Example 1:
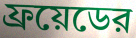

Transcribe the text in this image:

ফ্রয়েডের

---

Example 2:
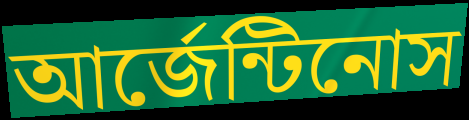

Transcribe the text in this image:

আর্জেন্টিনোস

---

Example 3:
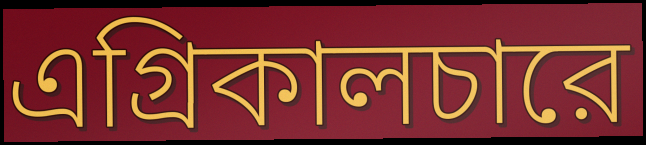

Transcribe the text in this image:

এগ্রিকালচারে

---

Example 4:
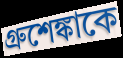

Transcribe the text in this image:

গ্রুশেঙ্কাকে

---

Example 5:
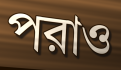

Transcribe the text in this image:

পরাও